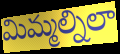
మిమ్మల్నిలా